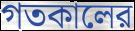
গতকালের